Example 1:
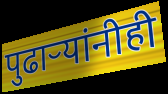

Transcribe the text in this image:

पुढाऱ्यांनीही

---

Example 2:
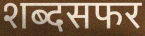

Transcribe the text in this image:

शब्दसफर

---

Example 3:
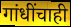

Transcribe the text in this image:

गांधींचाही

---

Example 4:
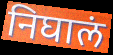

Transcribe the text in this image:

निघालं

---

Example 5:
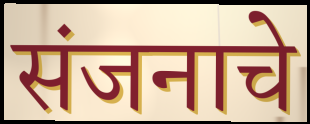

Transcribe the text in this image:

संजनाचे